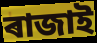
ৰাজাই